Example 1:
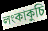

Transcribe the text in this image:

লংকাকুচি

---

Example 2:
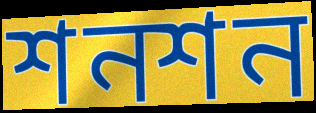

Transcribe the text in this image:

শনশন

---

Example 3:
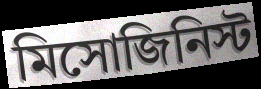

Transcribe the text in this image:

মিসোজিনিস্ট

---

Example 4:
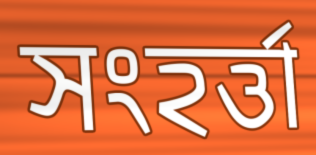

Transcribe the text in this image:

সংহর্ত্তা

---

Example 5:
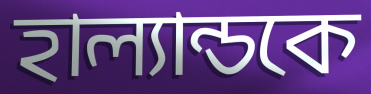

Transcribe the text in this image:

হাল্যান্ডকে